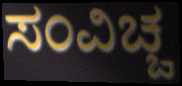
ಸಂವಿಚ್ಚ